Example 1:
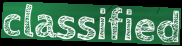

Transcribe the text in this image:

classified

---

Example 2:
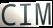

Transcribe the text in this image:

CIM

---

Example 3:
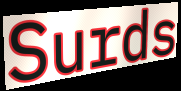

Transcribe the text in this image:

Surds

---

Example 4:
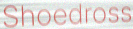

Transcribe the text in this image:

Shoedross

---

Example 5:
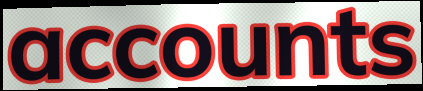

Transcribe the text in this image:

accounts